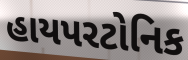
હાયપરટોનિક